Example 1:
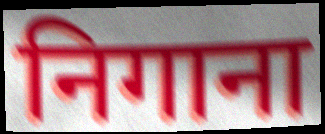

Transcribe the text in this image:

निगाना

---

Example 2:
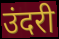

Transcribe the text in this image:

उंदरी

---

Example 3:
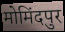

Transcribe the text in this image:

मोमिंदपुर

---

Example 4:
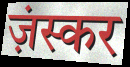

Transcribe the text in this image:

ज़ंस्कर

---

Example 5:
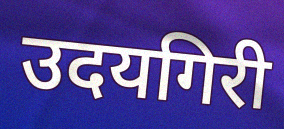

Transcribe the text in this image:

उदयगिरी